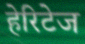
हेरिटेज